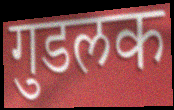
गुडलक